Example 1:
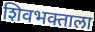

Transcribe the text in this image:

शिवभक्ताला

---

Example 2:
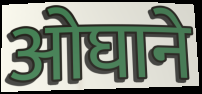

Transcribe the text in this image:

ओघाने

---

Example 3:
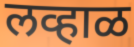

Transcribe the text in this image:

लव्हाळ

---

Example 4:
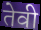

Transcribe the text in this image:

तेवी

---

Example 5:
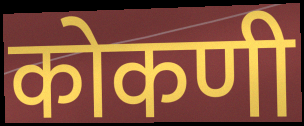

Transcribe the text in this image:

कोकणी